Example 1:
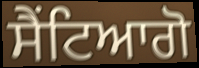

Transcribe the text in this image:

ਸੈਂਟਿਆਗੋ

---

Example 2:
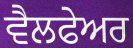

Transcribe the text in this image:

ਵੈਲਫੇਅਰ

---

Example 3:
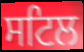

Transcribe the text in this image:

ਸਟਿਲ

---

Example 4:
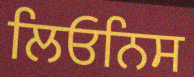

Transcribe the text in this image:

ਲਿਓਨਿਸ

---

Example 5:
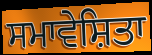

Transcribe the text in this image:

ਸਮਾਵੇਸ਼ਿਤਾ